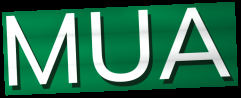
MUA